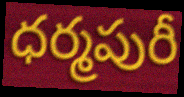
ధర్మపురీ